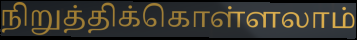
நிறுத்திக்கொள்ளலாம்